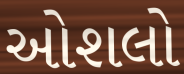
ઓશલો